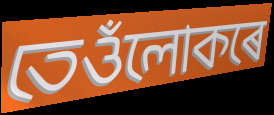
তেওঁলোকৰে